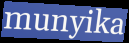
munyika